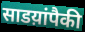
साडय़ांपैकी